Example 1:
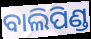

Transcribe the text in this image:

ବାଲିପିଣ୍ଡ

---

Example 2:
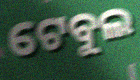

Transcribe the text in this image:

ଟେବୁଲ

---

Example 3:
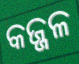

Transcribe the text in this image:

କଜ୍ଜଳ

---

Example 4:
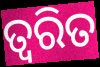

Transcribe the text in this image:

ତ୍ଵରିତ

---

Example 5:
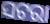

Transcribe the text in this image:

ସଟରା